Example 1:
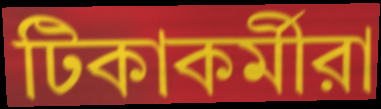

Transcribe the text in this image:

টিকাকর্মীরা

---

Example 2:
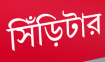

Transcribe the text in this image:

সিঁড়িটার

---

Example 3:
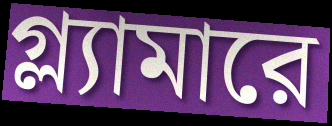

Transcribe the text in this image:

গ্ল্যামারে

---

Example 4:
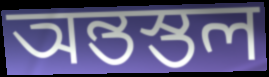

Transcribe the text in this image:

অন্তস্তল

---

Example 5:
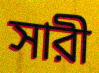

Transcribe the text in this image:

সারী